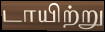
டாயிற்று